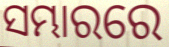
ସମ୍ଭାରରେ